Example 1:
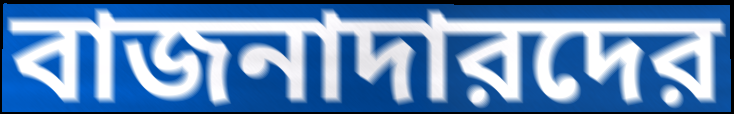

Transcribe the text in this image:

বাজনাদারদের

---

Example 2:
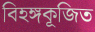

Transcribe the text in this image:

বিহঙ্গকূজিত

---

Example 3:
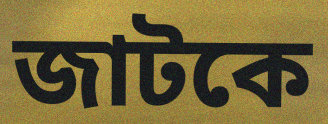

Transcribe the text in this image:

জাটকে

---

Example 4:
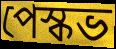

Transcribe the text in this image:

পেস্কভ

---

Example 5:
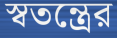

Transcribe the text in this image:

স্বতন্ত্রের